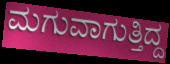
ಮಗುವಾಗುತ್ತಿದ್ದ